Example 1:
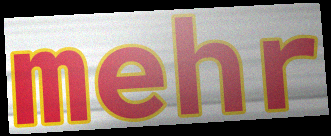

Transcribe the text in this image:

mehr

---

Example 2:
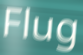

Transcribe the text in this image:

Flug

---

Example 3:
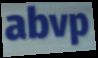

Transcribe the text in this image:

abvp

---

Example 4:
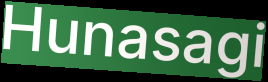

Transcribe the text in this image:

Hunasagi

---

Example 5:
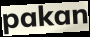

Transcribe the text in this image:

pakan